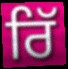
ਰਿੱ